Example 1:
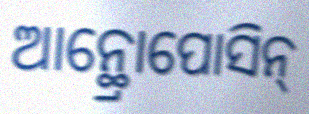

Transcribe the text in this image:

ଆନ୍ଥ୍ରୋପୋସିନ୍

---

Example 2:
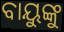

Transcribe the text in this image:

ବାୟୁଙ୍କୁ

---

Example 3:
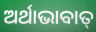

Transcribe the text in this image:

ଅର୍ଥାଭାବାତ୍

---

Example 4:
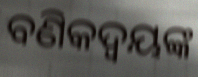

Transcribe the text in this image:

ବଣିକଦ୍ଵୟଙ୍କ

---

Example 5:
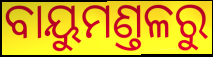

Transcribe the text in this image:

ବାୟୁମଣ୍ତଳରୁ